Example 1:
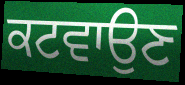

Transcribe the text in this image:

ਕਟਵਾਉਣ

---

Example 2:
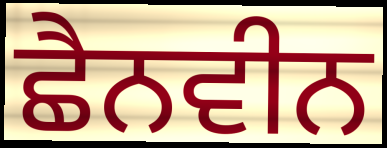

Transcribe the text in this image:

ਛੈਨਵੀਨ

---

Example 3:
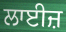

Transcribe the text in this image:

ਲਾਈਜ਼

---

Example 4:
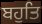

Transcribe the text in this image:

ਬਹੁਤਿ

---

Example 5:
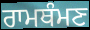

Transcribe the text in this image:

ਰਾਮਥੰਮਣ